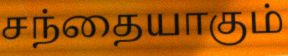
சந்தையாகும்